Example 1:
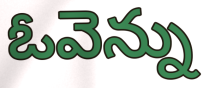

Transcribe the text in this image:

ఓవెన్ను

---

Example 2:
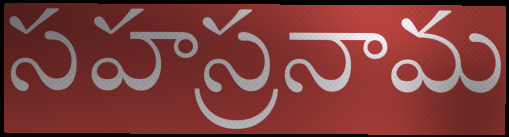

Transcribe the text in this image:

సహస్రనామ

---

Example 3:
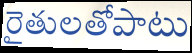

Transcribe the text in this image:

రైతులతోపాటు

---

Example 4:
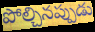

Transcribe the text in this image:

పోల్చినప్పుడు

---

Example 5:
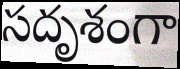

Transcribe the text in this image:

సదృశంగా